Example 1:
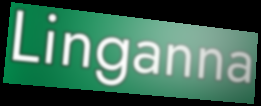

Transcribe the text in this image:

Linganna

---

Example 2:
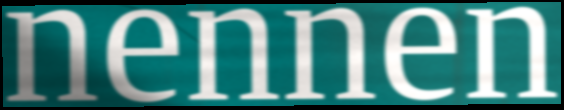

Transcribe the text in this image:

nennen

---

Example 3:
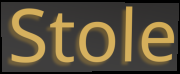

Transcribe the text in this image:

Stole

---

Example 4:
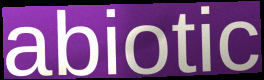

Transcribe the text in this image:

abiotic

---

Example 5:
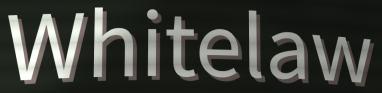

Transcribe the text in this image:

Whitelaw